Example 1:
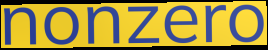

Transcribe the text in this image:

nonzero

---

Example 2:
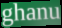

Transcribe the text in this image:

ghanu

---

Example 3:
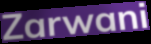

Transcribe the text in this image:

Zarwani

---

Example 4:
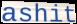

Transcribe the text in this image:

ashit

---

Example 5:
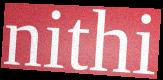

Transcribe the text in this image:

nithi